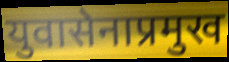
युवासेनाप्रमुख